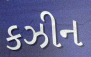
કઝીન